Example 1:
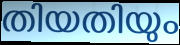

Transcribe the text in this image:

തിയതിയും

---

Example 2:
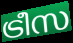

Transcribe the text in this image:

ട്രീസ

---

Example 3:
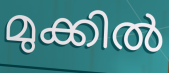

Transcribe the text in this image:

മുക്കിൽ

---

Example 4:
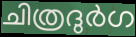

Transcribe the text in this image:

ചിത്രദുർഗ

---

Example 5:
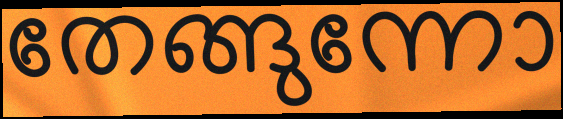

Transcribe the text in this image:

തേങ്ങുന്നോ